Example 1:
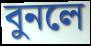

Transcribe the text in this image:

বুনলে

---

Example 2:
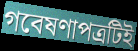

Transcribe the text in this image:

গবেষণাপত্রটিই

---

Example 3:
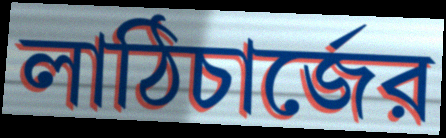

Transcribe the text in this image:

লাঠিচার্জের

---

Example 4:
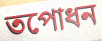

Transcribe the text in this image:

তপোধন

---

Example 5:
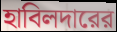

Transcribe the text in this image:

হাবিলদারের